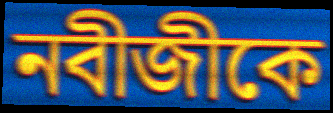
নবীজীকে